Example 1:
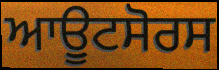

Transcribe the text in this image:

ਆਉੂਟਸੋਰਸ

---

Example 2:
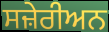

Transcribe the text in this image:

ਸਜ਼ੇਰੀਅਨ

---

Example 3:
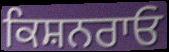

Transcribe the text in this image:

ਕਿਸ਼ਨਰਾਓ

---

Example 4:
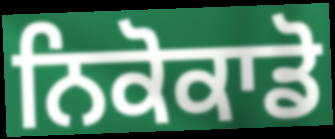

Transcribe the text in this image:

ਨਿਕੋਕਾਡੋ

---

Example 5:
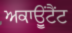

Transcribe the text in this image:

ਅਕਾਉੂਂਟੈਂਟ